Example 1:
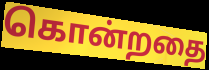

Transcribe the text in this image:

கொன்றதை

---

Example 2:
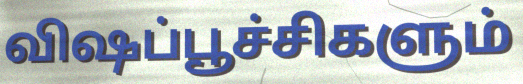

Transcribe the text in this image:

விஷப்பூச்சிகளும்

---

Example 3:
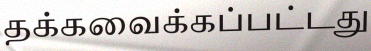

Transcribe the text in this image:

தக்கவைக்கப்பட்டது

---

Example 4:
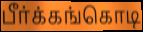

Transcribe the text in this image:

பீர்க்கங்கொடி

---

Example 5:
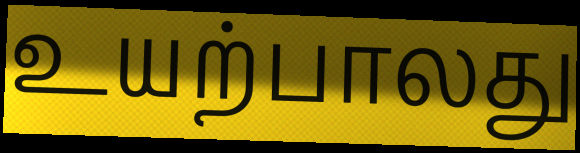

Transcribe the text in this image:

உயற்பாலது